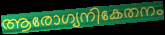
ആരോഗ്യനികേതനം